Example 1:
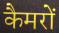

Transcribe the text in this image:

कैमरों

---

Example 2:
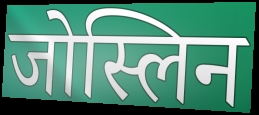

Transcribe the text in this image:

जोस्लिन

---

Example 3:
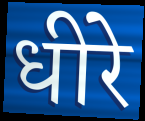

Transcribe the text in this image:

धीरे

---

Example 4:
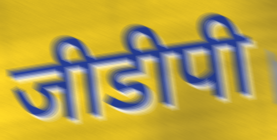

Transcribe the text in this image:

जीडीपी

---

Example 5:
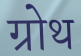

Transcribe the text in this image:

ग्रोथ